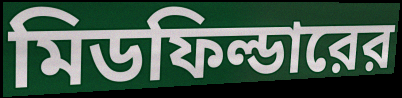
মিডফিল্ডারের